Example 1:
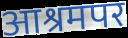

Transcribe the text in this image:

आश्रमपर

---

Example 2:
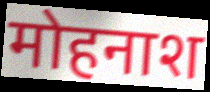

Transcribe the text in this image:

मोहनाश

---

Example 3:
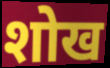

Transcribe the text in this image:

शोख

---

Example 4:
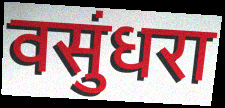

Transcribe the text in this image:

वसुंधरा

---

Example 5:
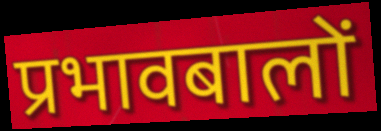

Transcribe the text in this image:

प्रभावबालों